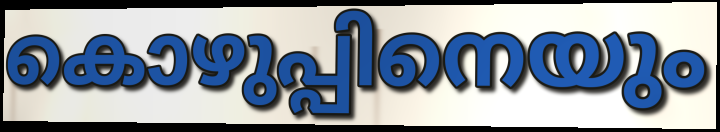
കൊഴുപ്പിനെയും